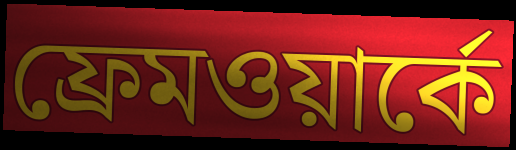
ফ্রেমওয়ার্কে